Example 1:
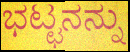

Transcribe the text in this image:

ಭಟ್ಟನನ್ನು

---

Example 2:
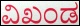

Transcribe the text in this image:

ವಿಖಂಡ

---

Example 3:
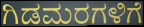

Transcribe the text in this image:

ಗಿಡಮರಗಳಿಗೆ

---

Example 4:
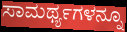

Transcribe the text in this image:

ಸಾಮರ್ಥ್ಯಗಳನ್ನೂ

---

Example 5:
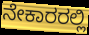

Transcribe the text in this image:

ನೇಕಾರರಲ್ಲಿ